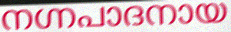
നഗ്നപാദനായ